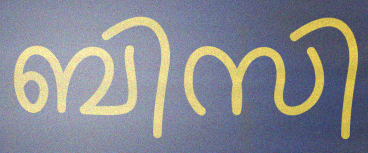
ബിസി